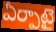
ఏర్పాటై